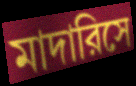
মাদারিসে